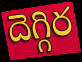
దెగ్గిర